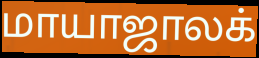
மாயாஜாலக்